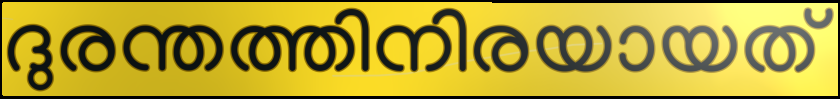
ദുരന്തത്തിനിരയായത്